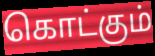
கொட்கும்